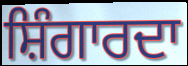
ਸ਼ਿੰਗਾਰਦਾ